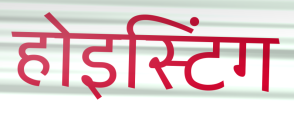
होइस्टिंग